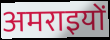
अमराइयों